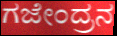
ಗಜೇಂದ್ರನ